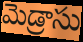
మెడ్రాసు